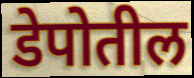
डेपोतील